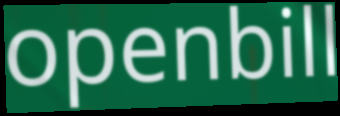
openbill